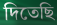
দিতেছি